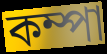
কম্পা